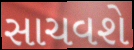
સાચવશે